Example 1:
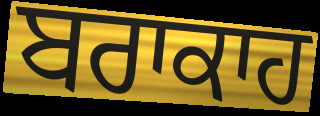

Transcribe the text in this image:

ਬਰਾਕਾਹ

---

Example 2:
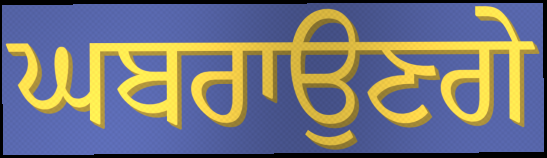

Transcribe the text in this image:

ਘਬਰਾਉਣਗੇ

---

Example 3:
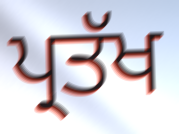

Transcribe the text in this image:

ਪ੍ਰਤੱਖ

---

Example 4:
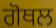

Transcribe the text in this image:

ਗੋਥਲ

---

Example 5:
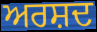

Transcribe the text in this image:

ਅਰਸ਼ਦ